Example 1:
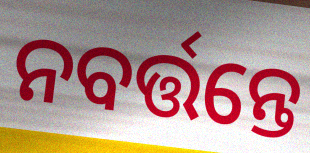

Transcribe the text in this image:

ନବର୍ତ୍ତନ୍ତେ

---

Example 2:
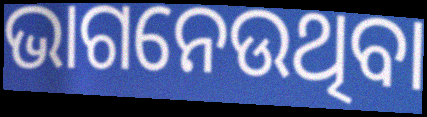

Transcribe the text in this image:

ଭାଗନେଉଥିବା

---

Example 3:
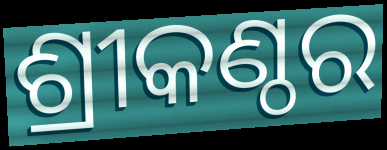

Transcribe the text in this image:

ଶ୍ରୀକଣ୍ଠର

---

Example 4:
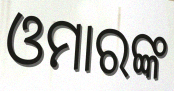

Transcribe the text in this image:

ଓମାରଙ୍କ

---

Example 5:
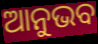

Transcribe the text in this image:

ଆନୁଭବ